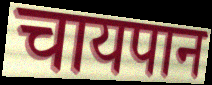
चायपान